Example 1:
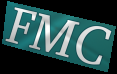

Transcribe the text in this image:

FMC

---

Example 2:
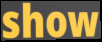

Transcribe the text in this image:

show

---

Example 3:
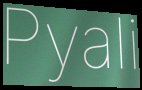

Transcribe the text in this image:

Pyali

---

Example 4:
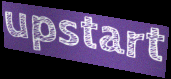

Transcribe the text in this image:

upstart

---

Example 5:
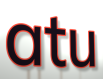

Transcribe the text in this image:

atu